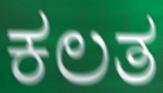
ಕಲತ